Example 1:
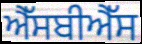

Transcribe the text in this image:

ਐੱਸਬੀਐੱਸ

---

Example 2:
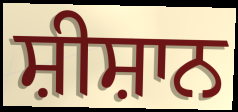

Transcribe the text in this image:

ਸ਼ੀਸ਼ਾਨ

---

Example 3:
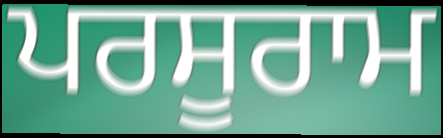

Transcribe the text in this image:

ਪਰਸੂਰਾਮ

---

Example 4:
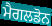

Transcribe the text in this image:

ਮੈਗਲਡੋਨ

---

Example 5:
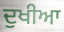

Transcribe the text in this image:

ਦੁਖੀਆ